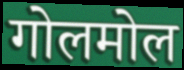
गोलमोल